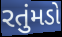
રતુંમડો